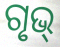
ଗୃଭ୍